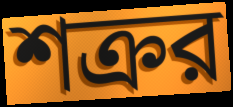
শক্রর